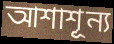
আশাশূন্য